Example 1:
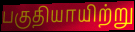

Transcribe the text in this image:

பகுதியாயிற்று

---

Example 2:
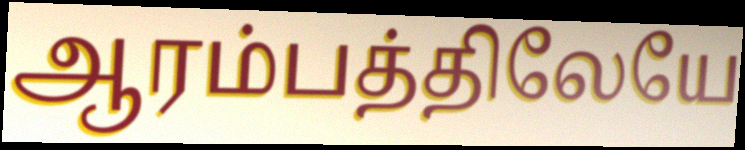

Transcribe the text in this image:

ஆரம்பத்திலேயே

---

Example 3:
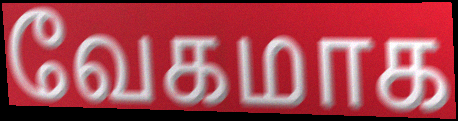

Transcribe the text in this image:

வேகமாக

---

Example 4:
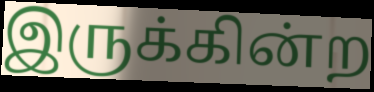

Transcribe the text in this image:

இருக்கின்ற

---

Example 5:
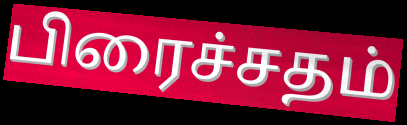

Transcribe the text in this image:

பிரைச்சதம்